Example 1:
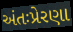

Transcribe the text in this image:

અંતઃપ્રેરણા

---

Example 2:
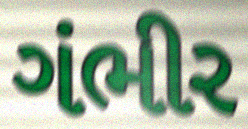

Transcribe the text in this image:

ગંભીર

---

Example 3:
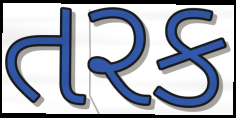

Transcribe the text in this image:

તરક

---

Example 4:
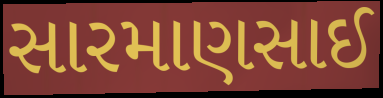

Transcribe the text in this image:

સારમાણસાઈ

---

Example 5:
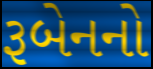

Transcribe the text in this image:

રૂબેનનો